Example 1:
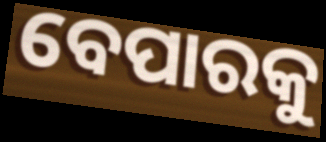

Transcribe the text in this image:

ବେପାରକୁ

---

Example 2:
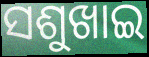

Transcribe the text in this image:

ସଶୁଖାଇ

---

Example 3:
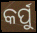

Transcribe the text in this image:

କର୍ପୁ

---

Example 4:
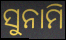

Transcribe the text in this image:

ସୁନାମି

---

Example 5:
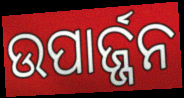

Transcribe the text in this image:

ଉପାର୍ଜ୍ଜନ